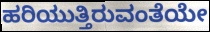
ಹರಿಯುತ್ತಿರುವಂತೆಯೇ